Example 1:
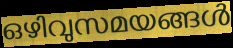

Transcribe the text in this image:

ഒഴിവുസമയങ്ങൾ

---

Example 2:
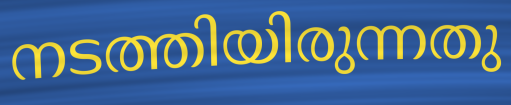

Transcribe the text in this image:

നടത്തിയിരുന്നതു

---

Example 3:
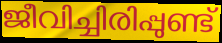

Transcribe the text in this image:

ജീവിച്ചിരിപ്പുണ്ട്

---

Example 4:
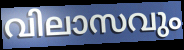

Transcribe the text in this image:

വിലാസവും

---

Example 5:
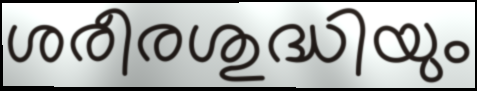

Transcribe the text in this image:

ശരീരശുദ്ധിയും